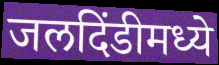
जलदिंडीमध्ये